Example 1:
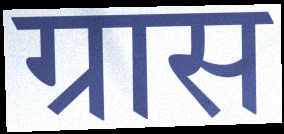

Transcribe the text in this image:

ग्रास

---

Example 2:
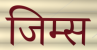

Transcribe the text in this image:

जिम्स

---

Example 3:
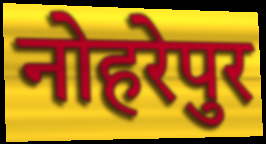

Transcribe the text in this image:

नोहरेपुर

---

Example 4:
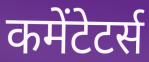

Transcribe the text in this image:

कमेंटेटर्स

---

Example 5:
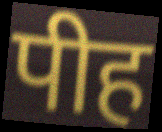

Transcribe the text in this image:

पीह